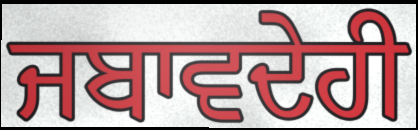
ਜਬਾਵਦੇਹੀ